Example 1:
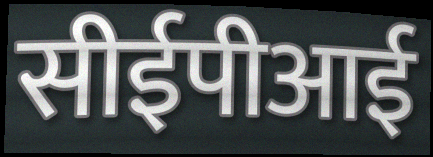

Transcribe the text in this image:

सीईपीआई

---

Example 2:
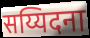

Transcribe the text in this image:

सय्यिदना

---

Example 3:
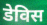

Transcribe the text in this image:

डेविस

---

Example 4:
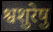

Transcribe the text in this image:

श्वशुरेषु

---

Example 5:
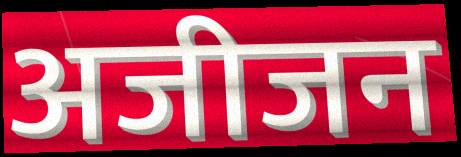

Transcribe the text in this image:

अजीजन